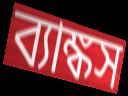
ব্যাঙ্কস